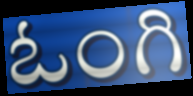
ఓంగి